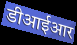
डीआईआर